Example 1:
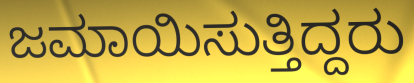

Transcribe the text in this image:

ಜಮಾಯಿಸುತ್ತಿದ್ದರು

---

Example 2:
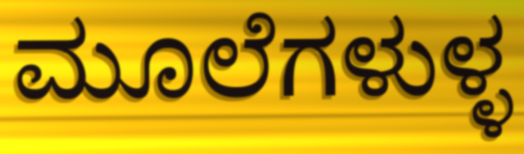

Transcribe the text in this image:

ಮೂಲೆಗಳುಳ್ಳ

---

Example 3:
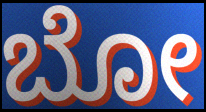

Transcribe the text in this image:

ಬೋ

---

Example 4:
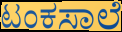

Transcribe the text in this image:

ಟಂಕಸಾಲೆ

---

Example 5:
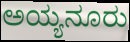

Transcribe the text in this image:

ಅಯ್ಯನೂರು